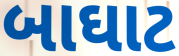
બાઘાટ